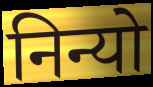
निन्यो